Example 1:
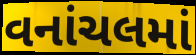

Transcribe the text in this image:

વનાંચલમાં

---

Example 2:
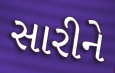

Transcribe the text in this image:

સારીને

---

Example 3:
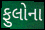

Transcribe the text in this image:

ફુલોના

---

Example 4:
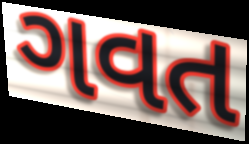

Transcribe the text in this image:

ગવત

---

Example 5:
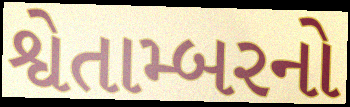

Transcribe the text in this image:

શ્વેતામ્બરનો